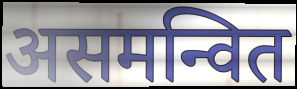
असमन्वित